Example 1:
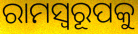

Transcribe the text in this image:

ରାମସ୍ୱରୂପକୁ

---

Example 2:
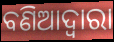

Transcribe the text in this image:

ବଣିଆଦ୍ୱାରା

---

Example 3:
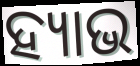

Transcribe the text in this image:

ହ୍ୟାଭ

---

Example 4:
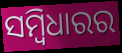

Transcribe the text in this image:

ସମ୍ବିଧାରର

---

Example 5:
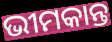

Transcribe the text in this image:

ଭୀମକାନ୍ତ